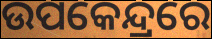
ଉପକେନ୍ଦ୍ରରେ